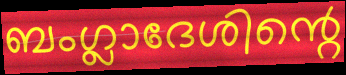
ബംഗ്ലാദേശിന്റെ